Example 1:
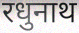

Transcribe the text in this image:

रधुनाथ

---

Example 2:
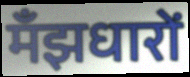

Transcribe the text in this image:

मँझधारों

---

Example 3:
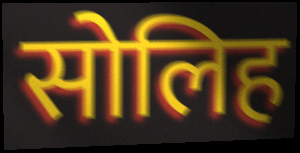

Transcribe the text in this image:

सोलिह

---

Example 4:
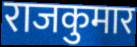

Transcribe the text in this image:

राजकुमार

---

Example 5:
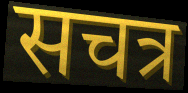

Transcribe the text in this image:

सचत्र